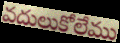
వదులుకోలేము